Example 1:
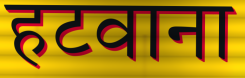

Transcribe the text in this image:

हटवाना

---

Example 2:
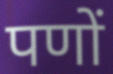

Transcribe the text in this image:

पणों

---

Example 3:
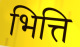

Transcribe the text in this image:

भित्ति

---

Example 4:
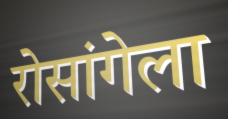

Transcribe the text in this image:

रोसांगेला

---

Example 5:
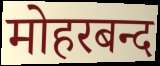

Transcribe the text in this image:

मोहरबन्द